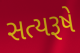
સત્યરૂષે